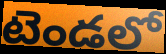
టెండలో